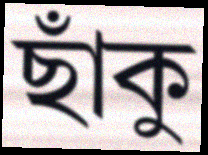
ছাঁকু